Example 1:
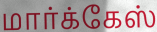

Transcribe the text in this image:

மார்க்கேஸ்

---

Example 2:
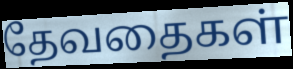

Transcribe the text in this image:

தேவதைகள்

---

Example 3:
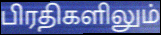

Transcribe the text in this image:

பிரதிகளிலும்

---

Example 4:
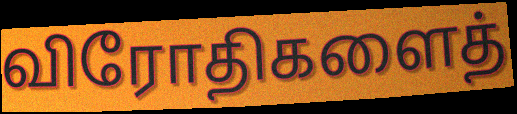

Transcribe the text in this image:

விரோதிகளைத்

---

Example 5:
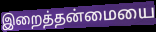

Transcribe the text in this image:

இறைத்தன்மையை